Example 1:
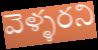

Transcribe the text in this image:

వెళ్ళరని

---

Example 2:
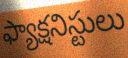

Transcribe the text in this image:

ఫ్యాక్షనిస్టులు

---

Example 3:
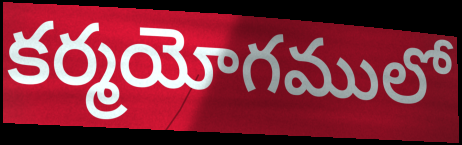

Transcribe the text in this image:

కర్మయోగములో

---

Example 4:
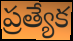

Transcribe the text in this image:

ప్రత్యేక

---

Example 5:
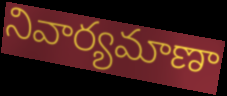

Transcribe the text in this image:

నివార్యమాణా